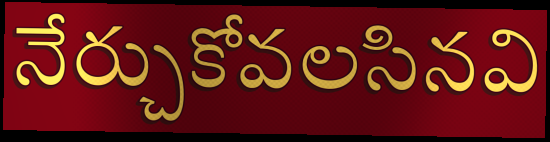
నేర్చుకోవలసినవి